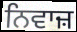
ਨਿਵਾਜ਼